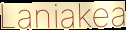
Laniakea